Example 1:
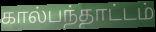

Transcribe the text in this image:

கால்பந்தாட்டம்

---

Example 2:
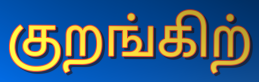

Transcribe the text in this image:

குறங்கிற்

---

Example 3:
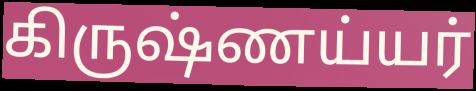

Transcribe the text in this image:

கிருஷ்ணய்யர்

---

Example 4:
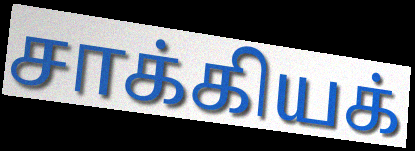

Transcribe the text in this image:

சாக்கியக்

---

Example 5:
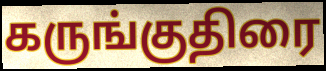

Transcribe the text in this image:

கருங்குதிரை